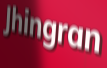
Jhingran